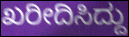
ಖರೀದಿಸಿದ್ದು